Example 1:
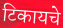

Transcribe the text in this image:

टिकायचे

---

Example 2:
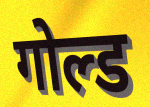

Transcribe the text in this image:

गोल्ड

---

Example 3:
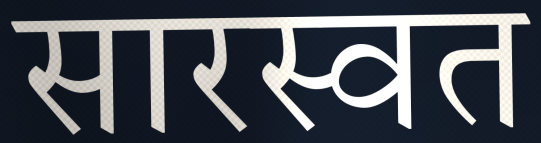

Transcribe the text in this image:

सारस्वत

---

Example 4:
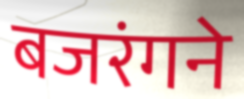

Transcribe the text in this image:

बजरंगने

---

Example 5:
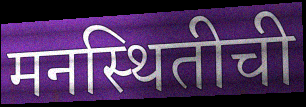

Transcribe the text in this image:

मनस्थितीची